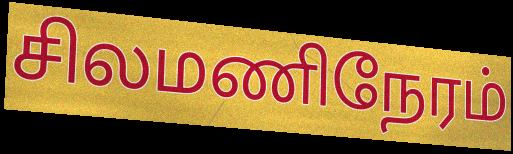
சிலமணிநேரம்